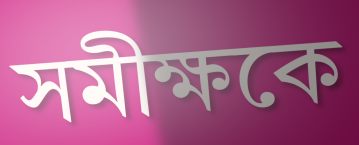
সমীক্ষকে